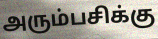
அரும்பசிக்கு